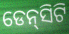
ଡେନ୍‌ସିଟି